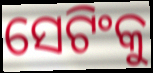
ସେଟିଂକୁ